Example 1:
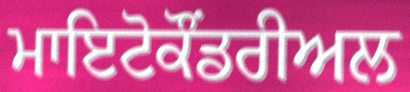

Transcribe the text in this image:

ਮਾਇਟੋਕੌਂਡਰੀਅਲ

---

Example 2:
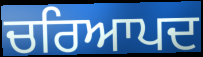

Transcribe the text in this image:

ਚਰਿਆਪਦ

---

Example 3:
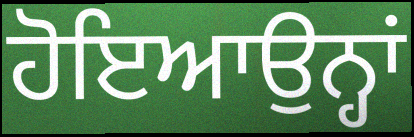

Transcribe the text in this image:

ਹੋਇਆਉਨ੍ਹਾਂ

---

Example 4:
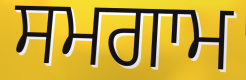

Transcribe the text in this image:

ਸਮਗਾਮ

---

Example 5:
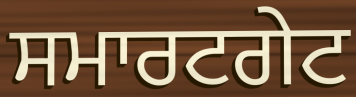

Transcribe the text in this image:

ਸਮਾਰਟਗੇਟ